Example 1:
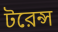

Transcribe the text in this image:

টরেন্স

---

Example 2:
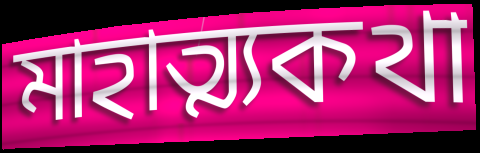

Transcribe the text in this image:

মাহাত্ম্যকথা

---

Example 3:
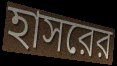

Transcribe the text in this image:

হাসরের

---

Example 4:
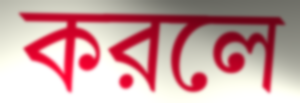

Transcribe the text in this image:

করলে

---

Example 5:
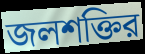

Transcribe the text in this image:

জলশক্তির